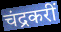
चंद्रकरीं